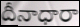
దీనాధారా